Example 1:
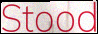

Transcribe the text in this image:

Stood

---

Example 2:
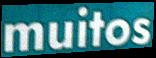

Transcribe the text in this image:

muitos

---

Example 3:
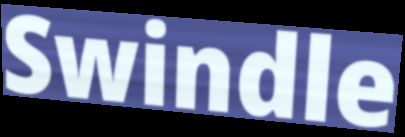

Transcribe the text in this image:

Swindle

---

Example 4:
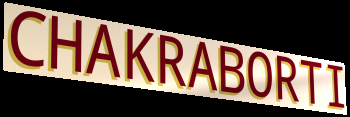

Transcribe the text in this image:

CHAKRABORTI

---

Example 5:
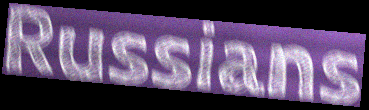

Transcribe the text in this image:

Russians